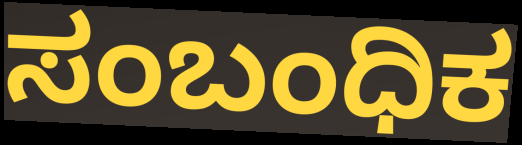
ಸಂಬಂಧಿಕ